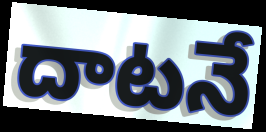
దాటనే